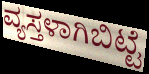
ವ್ಯಸ್ತಳಾಗಿಬಿಟ್ಟೆ